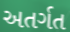
અતર્ગત